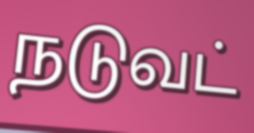
நடுவட்